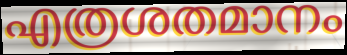
എത്രശതമാനം